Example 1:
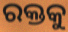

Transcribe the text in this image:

ରକ୍ତକୁ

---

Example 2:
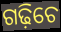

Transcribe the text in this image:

ଗଢ଼ିଚେ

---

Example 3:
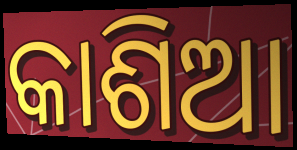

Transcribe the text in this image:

କାଶିଆ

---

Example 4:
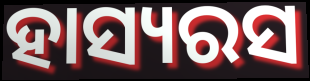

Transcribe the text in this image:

ହାସ୍ୟରସ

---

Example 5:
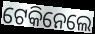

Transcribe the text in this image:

ଟେକିନେଲେ